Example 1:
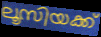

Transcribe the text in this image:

ലൂസിയക്ക്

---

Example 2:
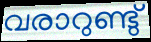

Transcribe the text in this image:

വരാറുണ്ടു്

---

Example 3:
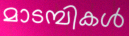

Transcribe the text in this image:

മാടമ്പികൾ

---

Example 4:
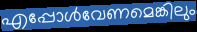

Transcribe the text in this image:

എപ്പോൾവേണമെങ്കിലും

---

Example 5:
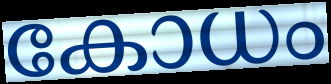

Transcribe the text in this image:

കോധം